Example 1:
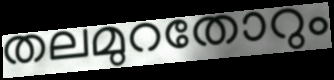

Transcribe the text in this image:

തലമുറതോറും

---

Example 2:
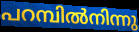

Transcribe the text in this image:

പറമ്പിൽനിന്നു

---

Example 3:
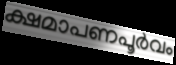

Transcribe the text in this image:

ക്ഷമാപണപൂർവം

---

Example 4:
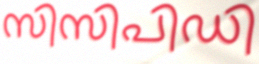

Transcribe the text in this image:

സിസിപിഡി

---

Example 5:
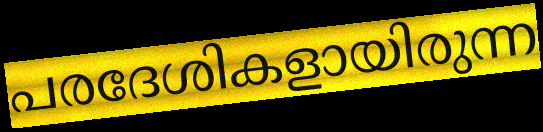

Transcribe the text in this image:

പരദേശികളായിരുന്ന